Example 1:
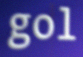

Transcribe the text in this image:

gol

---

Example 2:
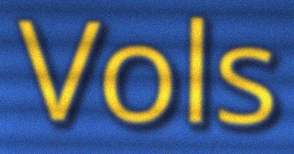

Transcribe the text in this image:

Vols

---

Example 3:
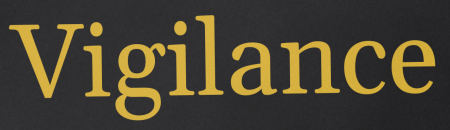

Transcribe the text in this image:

Vigilance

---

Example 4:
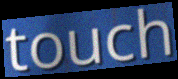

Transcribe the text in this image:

touch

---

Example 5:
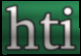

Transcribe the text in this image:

hti